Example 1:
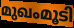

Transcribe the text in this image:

മുഖംമൂടി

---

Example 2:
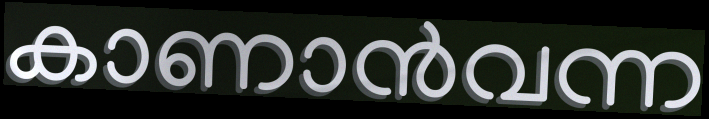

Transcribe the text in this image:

കാണാൻവന്ന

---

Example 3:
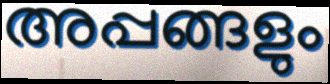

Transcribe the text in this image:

അപ്പങ്ങളും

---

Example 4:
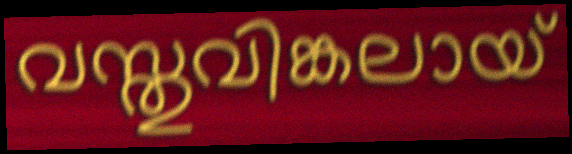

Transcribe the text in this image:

വസ്തുവിങ്കലായ്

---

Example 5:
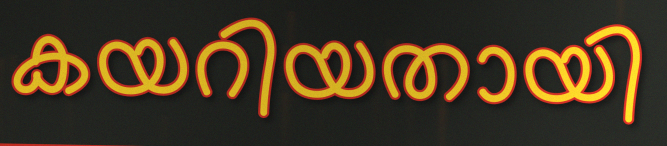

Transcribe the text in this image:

കയറിയതായി